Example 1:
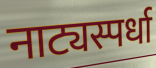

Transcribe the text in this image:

नाट्यस्पर्धा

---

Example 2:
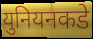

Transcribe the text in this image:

युनियनकडे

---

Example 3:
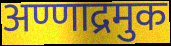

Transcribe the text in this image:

अण्णाद्रमुक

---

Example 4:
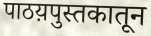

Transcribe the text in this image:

पाठय़पुस्तकातून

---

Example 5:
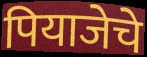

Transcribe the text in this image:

पियाजेचे